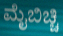
ಮೈಬಿಚ್ಚಿ